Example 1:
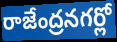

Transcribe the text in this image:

రాజేంద్రనగర్లో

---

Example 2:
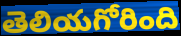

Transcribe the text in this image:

తెలియగోరింది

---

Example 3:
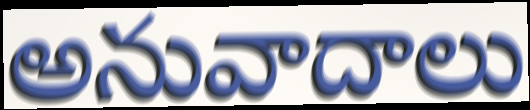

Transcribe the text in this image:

అనువాదాలు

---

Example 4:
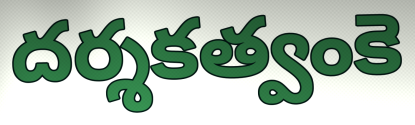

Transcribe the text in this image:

దర్శకత్వంకె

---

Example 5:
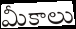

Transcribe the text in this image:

మీకాలు